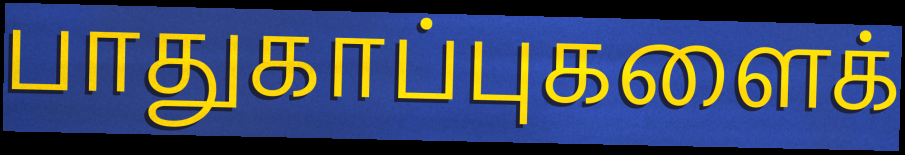
பாதுகாப்புகளைக்